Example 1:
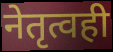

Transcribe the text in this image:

नेतृत्वही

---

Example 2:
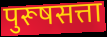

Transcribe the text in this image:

पुरूषसत्ता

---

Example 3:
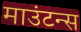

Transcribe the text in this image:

माउंटन्स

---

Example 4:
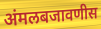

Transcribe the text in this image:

अंमलबजावणीस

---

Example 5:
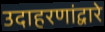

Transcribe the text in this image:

उदाहरणांद्वारे